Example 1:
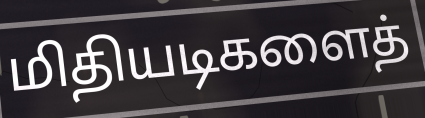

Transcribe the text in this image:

மிதியடிகளைத்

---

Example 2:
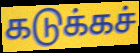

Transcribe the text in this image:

கடுக்கச்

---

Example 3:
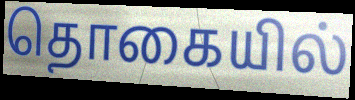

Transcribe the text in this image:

தொகையில்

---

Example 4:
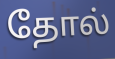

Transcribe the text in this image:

தோல்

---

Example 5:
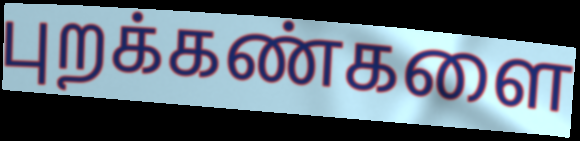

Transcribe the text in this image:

புறக்கண்களை